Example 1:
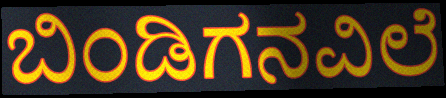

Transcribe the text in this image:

ಬಿಂಡಿಗನವಿಲೆ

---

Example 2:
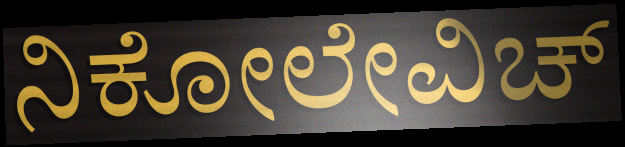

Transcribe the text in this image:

ನಿಕೋಲೇವಿಚ್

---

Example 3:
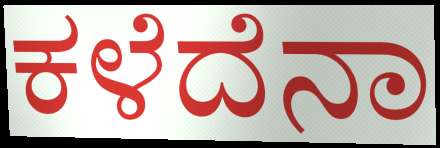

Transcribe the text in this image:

ಕಳೆದೆನಾ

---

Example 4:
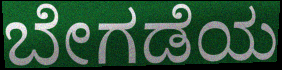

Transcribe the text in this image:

ಬೇಗಡೆಯ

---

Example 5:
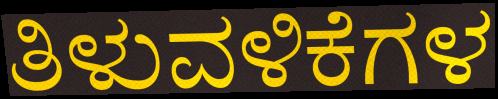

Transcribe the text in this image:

ತಿಳುವಳಿಕೆಗಳ